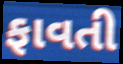
ફાવતી